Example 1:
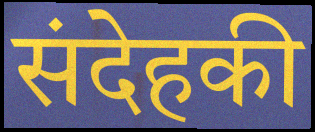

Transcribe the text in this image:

संदेहकी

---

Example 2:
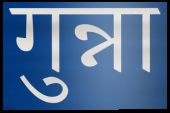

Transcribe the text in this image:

गुन्ना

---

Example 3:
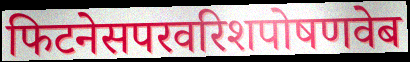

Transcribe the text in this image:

फिटनेसपरवरिशपोषणवेब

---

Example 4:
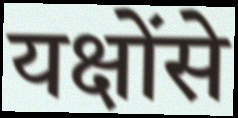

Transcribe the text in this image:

यक्षोंसे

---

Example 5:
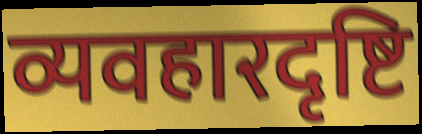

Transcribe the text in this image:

व्यवहारदृष्टि